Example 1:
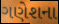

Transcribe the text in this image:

ગણેશના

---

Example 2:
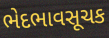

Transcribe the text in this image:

ભેદભાવસૂચક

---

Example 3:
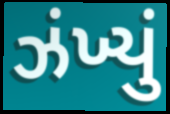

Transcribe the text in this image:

ઝંખ્યું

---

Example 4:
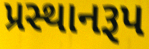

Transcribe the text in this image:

પ્રસ્થાનરૂપ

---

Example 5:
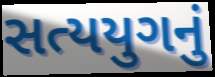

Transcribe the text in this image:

સત્યયુગનું